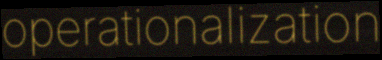
operationalization